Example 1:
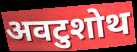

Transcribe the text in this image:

अवटुशोथ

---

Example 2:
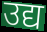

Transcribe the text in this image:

उद्य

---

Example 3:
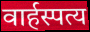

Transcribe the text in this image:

वार्हस्पत्य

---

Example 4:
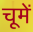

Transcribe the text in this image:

चूमें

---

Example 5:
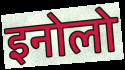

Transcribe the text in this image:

इनोलो